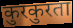
कुरकुरता